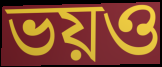
ভয়ও